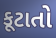
કૂટાતો